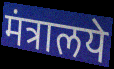
मंत्रालये